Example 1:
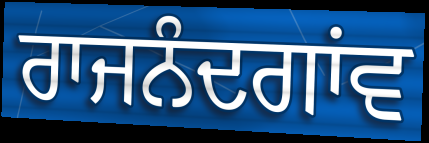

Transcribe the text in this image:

ਰਾਜਨੰਦਗਾਂਵ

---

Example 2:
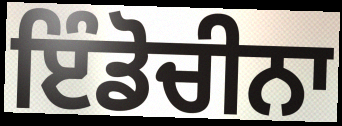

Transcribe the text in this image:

ਇੰਡੋਚੀਨਾ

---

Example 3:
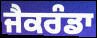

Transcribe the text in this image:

ਜੈਕਰੰਡਾ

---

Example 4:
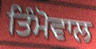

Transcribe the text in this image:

ਤਿੰਮੋਵਾਲ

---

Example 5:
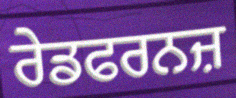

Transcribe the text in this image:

ਰੇਡਫਰਨਜ਼